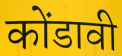
कोंडावी